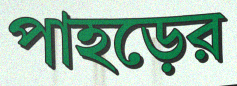
পাহড়ের